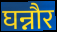
घन्नौर